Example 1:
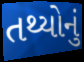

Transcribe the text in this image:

તથ્યોનું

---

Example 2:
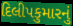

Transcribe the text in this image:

દિલીપકુમારનું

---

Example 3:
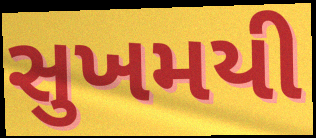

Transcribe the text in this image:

સુખમયી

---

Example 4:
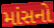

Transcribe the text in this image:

માંસનો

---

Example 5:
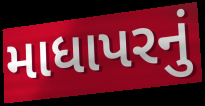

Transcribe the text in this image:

માધાપરનું